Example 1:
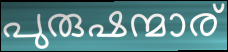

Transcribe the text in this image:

പുരുഷന്മാര്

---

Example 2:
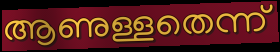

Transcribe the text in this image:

ആണുള്ളതെന്ന്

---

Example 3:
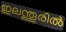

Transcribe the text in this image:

ഇലന്തൂരിൽ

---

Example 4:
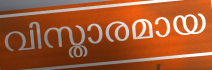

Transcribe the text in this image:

വിസ്താരമായ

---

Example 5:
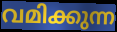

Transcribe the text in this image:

വമിക്കുന്ന